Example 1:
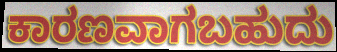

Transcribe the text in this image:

ಕಾರಣವಾಗಬಹುದು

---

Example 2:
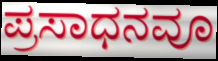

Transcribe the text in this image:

ಪ್ರಸಾಧನವೂ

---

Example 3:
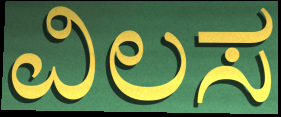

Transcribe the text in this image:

ವಿಲಸ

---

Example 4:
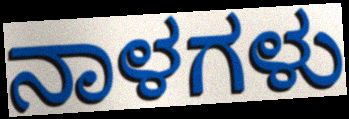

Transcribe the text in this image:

ನಾಳಗಳು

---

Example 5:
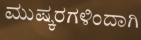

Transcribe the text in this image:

ಮುಷ್ಕರಗಳಿಂದಾಗಿ